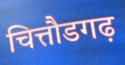
चित्तौडगढ़